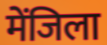
मेंजिला